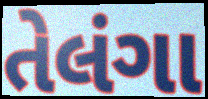
તેલંગા